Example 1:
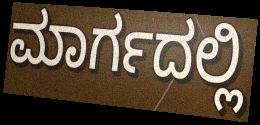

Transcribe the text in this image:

ಮಾರ್ಗದಲ್ಲಿ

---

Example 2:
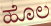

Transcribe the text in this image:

ಹೊಲ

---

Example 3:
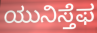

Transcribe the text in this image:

ಯುನಿಸ್ತೆಫ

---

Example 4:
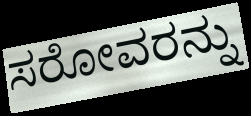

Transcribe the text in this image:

ಸರೋವರನ್ನು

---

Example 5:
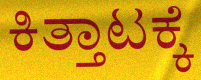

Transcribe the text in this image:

ಕಿತ್ತಾಟಕ್ಕೆ